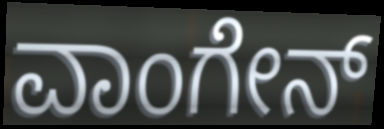
ವಾಂಗೇನ್